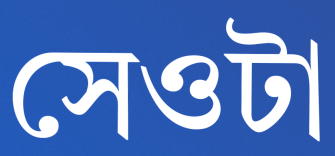
সেওটা